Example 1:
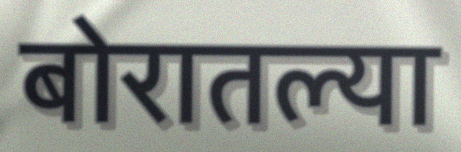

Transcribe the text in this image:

बोरातल्या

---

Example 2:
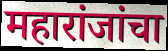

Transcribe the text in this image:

महारांजांचा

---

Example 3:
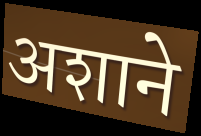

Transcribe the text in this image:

अशाने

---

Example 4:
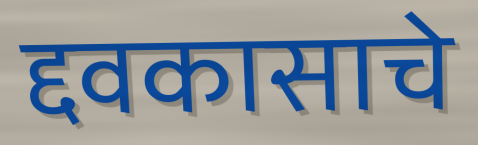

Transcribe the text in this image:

द्दवकासाचे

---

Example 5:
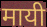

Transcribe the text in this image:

मायी